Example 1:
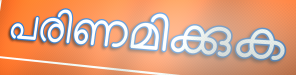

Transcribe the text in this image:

പരിണമിക്കുക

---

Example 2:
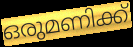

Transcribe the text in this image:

ഒരുമണിക്ക്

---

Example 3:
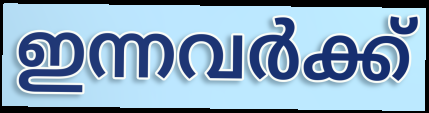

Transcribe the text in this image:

ഇന്നവർക്ക്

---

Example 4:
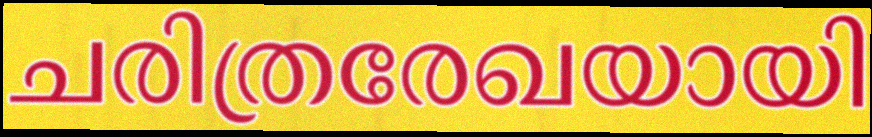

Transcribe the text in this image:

ചരിത്രരേഖയായി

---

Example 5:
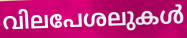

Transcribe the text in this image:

വിലപേശലുകൾ